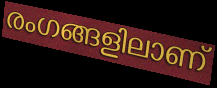
രംഗങ്ങളിലാണ്